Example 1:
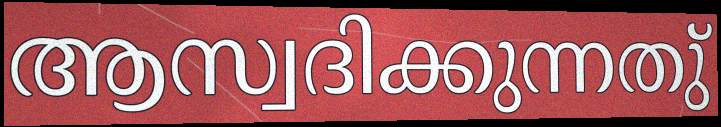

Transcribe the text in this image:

ആസ്വദിക്കുന്നതു്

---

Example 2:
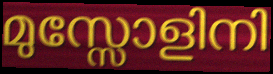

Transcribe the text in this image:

മുസ്സോളിനി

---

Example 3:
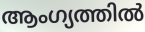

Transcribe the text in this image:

ആംഗ്യത്തിൽ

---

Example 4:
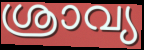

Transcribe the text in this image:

ശ്രാവ്യ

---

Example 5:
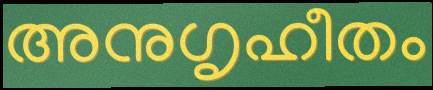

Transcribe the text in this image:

അനുഗൃഹീതം